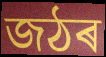
জঠৰ